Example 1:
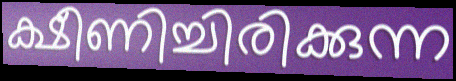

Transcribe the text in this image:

ക്ഷീണിച്ചിരിക്കുന്ന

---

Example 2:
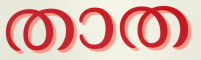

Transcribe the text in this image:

താത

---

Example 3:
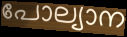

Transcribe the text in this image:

പോല്യാന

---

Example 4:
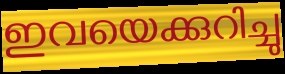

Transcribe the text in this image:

ഇവയെക്കുറിച്ചു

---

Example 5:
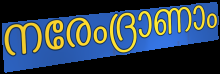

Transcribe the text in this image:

നരേംദ്രാണാം